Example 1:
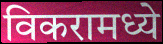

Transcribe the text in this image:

विकरामध्ये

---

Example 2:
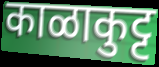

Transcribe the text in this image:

काळाकुट्ट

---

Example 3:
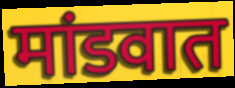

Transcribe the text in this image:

मांडवात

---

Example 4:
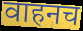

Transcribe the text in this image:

वाहनच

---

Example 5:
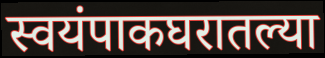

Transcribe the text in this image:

स्वयंपाकघरातल्या